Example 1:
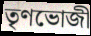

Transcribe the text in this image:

তৃণভোজী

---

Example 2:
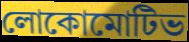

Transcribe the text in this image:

লোকোমোটিভ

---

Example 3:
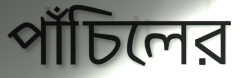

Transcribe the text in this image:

পাঁচিলের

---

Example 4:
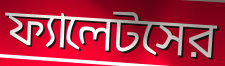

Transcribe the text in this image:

ফ্যালেটসের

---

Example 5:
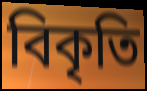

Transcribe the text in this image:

বিকৃতি